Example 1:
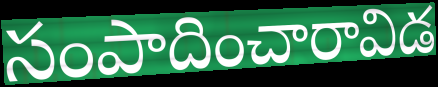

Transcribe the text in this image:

సంపాదించారావిడ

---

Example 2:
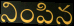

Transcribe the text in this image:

నింపిన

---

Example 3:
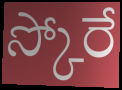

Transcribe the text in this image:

స్కోరే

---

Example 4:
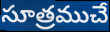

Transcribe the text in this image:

సూత్రముచే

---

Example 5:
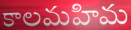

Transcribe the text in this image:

కాలమహిమ